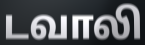
டவாலி